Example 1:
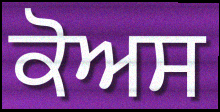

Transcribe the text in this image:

ਕੋਅਸ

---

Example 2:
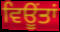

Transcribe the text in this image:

ਵਿਊਂਤਾਂ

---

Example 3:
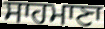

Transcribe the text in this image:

ਸਾਹਮਾਣਾ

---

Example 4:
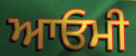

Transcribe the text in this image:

ਆਓਮੀ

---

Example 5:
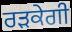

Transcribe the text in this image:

ਰੜਕੇਗੀ